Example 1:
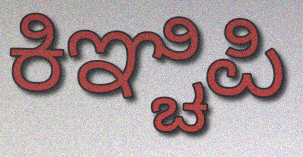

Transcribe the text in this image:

ಕಿಞ್ಚಿಪಿ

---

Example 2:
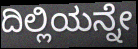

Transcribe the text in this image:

ದಿಲ್ಲಿಯನ್ನೇ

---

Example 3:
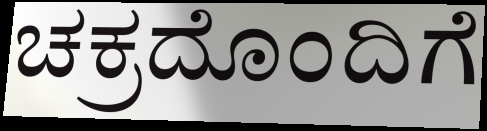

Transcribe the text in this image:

ಚಕ್ರದೊಂದಿಗೆ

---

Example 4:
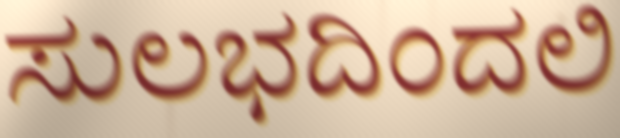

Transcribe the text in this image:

ಸುಲಭದಿಂದಲಿ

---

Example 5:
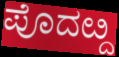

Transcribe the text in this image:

ಪೊದೞ್ದ